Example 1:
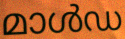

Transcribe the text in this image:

മാൾഡ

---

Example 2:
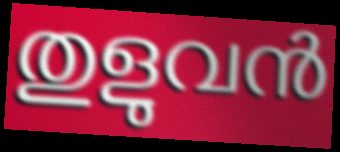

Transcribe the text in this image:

തുളുവൻ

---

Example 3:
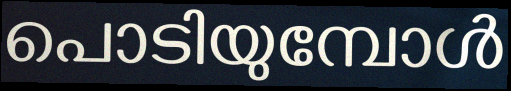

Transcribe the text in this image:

പൊടിയുമ്പോൾ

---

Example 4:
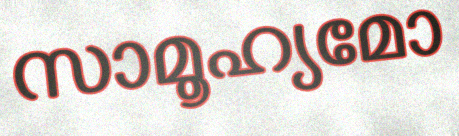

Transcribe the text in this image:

സാമൂഹ്യമോ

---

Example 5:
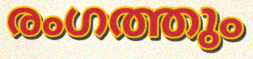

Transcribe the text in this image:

രംഗത്തും